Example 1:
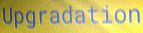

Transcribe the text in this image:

Upgradation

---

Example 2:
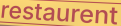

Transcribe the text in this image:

restaurent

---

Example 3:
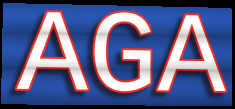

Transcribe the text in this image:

AGA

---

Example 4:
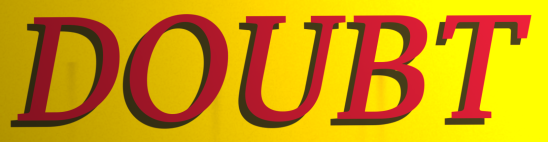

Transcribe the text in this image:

DOUBT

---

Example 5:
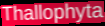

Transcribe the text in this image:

Thallophyta